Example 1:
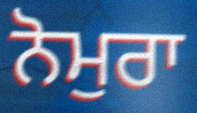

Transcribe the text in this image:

ਨੋਮੁਰਾ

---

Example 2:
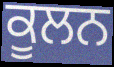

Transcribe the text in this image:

ਕੂਲਨ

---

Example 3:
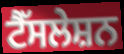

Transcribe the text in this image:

ਟੈੱਸਲੇਸ਼ਨ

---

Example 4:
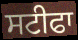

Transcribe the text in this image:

ਸਟੀਫਾ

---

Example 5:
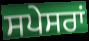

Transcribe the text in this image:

ਸਪੇਸਰਾਂ